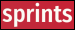
sprints